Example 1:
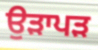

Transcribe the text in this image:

ਉੜਾਪੜ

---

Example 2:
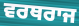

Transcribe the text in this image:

ਵਰਥਰਾਜ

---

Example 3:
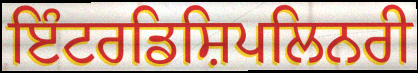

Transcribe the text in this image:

ਇੰਟਰਡਿਸ਼ਿਪਲਿਨਰੀ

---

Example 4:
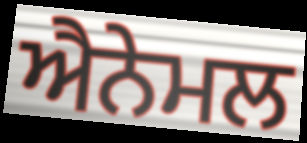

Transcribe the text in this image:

ਐਨੇਮਲ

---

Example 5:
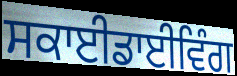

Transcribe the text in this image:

ਸਕਾਈਡਾਈਵਿੰਗ